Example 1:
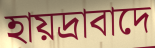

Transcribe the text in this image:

হায়দ্রাবাদে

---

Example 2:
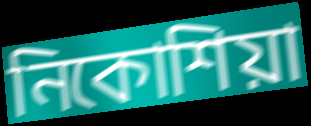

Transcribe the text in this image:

নিকোশিয়া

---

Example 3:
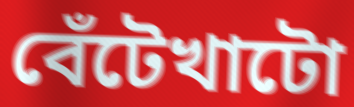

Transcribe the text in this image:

বেঁটেখাটো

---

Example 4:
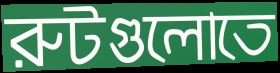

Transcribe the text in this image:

রুটগুলোতে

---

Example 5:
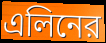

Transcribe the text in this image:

এলিনের